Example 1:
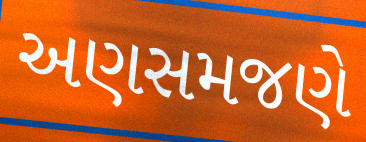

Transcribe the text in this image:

અણસમજણે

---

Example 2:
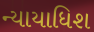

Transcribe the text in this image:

ન્યાયાધિશ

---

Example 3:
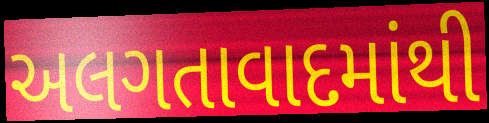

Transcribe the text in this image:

અલગતાવાદમાંથી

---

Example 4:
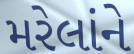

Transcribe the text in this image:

મરેલાંને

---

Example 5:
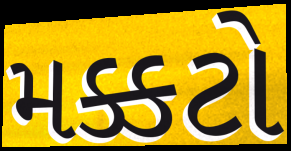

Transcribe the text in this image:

મક્કટો